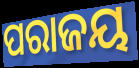
ପରାଜୟ